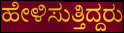
ಹೇಳಿಸುತ್ತಿದ್ದರು